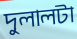
দুলালটা